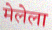
मेलेला